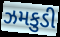
ઝમકુડી